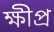
ক্ষীপ্ৰ